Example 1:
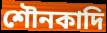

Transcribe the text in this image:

শৌনকাদি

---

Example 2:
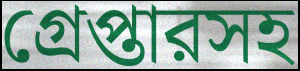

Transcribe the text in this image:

গ্রেপ্তারসহ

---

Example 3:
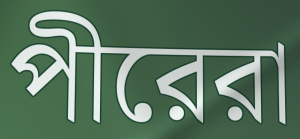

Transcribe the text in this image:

পীরেরা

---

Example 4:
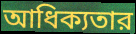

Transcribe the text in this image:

আধিক্যতার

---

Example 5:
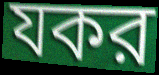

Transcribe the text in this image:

যকর